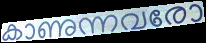
കാണുന്നവരോ